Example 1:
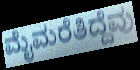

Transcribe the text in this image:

ಮೈಮರೆತಿದ್ದೆವು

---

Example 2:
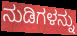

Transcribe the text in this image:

ನುಡಿಗಳನ್ನು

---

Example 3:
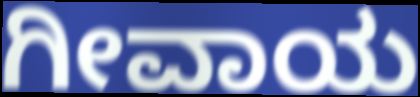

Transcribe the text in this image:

ಗೀವಾಯ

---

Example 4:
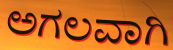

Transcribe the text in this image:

ಅಗಲವಾಗಿ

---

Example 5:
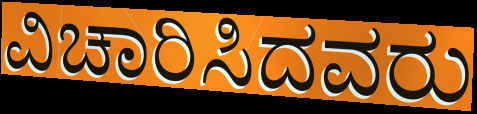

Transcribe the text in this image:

ವಿಚಾರಿಸಿದವರು